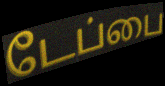
டேப்பை